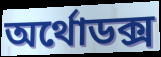
অর্থোডক্স